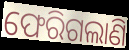
ଫେରିଗଲାଣି